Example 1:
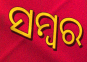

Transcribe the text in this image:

ସମ୍ବର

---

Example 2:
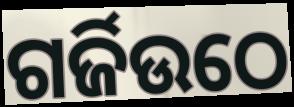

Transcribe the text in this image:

ଗର୍ଜିଉଠେ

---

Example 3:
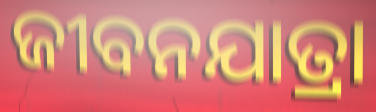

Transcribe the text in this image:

ଜୀବନଯାତ୍ରା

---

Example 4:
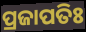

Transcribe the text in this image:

ପ୍ରଜାପତିଃ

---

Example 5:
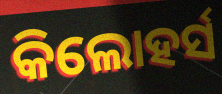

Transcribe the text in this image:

କିଲୋହର୍ସ